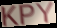
KPY